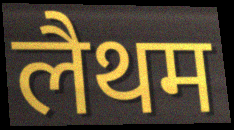
लैथम